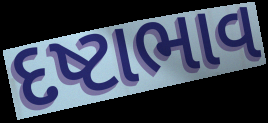
દષ્ટાભાવ